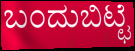
ಬಂದುಬಿಟ್ಟೆ